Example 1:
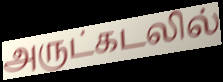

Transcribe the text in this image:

அருட்கடலில்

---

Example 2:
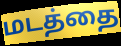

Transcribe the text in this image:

மடத்தை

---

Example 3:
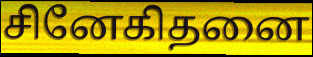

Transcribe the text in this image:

சினேகிதனை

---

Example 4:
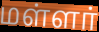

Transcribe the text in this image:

மள்ளர்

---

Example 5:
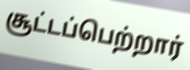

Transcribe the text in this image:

சூட்டப்பெற்றார்